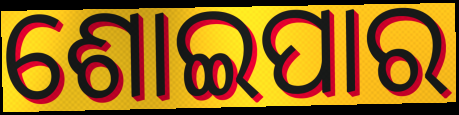
ଶୋଇପାର